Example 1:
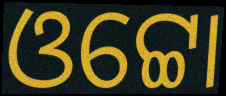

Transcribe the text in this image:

ଓଟ୍ଟୋ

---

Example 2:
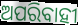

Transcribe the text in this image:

ଅପରିବାହୀ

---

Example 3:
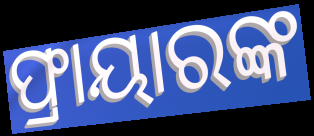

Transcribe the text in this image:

ଫ୍ରାୟାରଙ୍କ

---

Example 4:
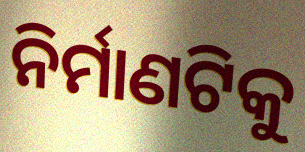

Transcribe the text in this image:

ନିର୍ମାଣଟିକୁ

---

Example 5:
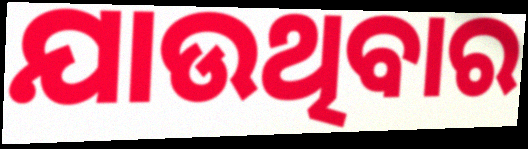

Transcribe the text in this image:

ଯାଉଥିବାର